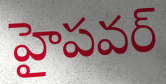
హైపవర్